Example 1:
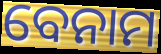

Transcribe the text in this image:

ବେନାମ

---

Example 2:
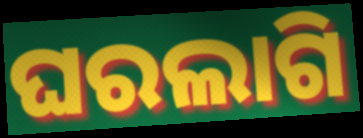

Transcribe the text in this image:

ଘରଲାଗି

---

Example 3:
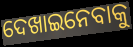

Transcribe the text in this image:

ଦେଖାଇନେବାକୁ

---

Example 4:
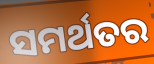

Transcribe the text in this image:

ସମର୍ଥତର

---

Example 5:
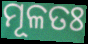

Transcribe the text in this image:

ମୂଳତଃ